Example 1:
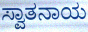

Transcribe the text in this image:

ಸ್ವಾತನಾಯ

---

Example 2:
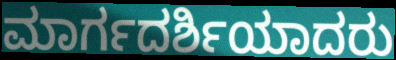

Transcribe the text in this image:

ಮಾರ್ಗದರ್ಶಿಯಾದರು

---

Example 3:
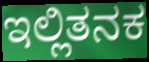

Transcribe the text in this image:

ಇಲ್ಲಿತನಕ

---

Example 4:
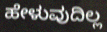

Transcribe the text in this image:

ಹೇಳುವುದಿಲ್ಲ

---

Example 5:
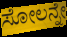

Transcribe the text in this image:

ಸೋಲನ್ನೇ